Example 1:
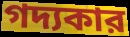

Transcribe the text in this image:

গদ্যকার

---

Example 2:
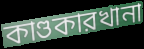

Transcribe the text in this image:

কাণ্ডকারখানা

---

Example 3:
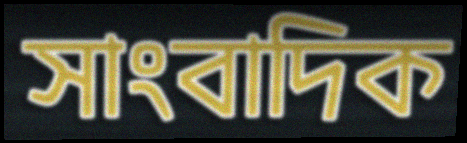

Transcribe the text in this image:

সাংবাদিক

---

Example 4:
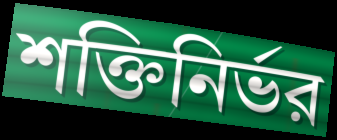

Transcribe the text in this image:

শক্তিনির্ভর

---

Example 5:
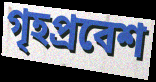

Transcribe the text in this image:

গৃহপ্রবেশ